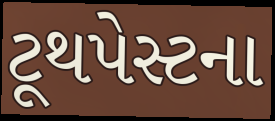
ટૂથપેસ્ટના